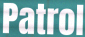
Patrol